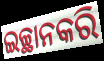
ଇଚ୍ଛାନକରି